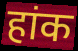
हांक